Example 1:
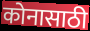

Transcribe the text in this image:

कोनासाठी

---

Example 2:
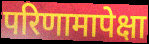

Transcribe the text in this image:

परिणामापेक्षा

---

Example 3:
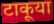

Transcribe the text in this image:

टाकूया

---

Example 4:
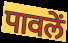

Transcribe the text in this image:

पावलें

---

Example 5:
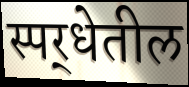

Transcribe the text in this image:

स्पर्धेतील